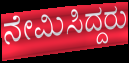
ನೇಮಿಸಿದ್ದರು